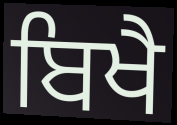
ਬਿਖੈ